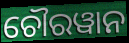
ଚୌରୱାନ